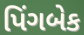
પિંગબેક